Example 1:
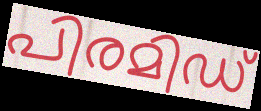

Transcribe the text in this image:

പിരമിഡ്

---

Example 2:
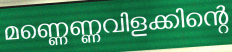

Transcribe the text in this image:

മണ്ണെണ്ണവിളക്കിന്റെ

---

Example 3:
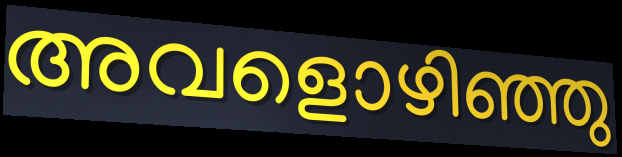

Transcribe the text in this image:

അവളൊഴിഞ്ഞു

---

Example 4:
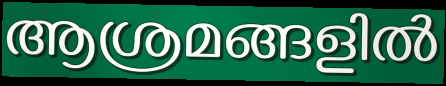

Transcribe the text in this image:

ആശ്രമങ്ങളിൽ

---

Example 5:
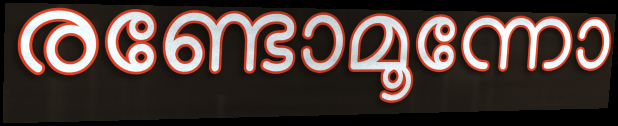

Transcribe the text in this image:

രണ്ടോമൂന്നോ